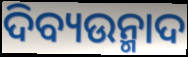
ଦିବ୍ୟଉନ୍ମାଦ